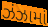
ઝંઝામાં